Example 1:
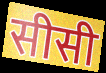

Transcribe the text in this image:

सीसी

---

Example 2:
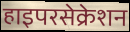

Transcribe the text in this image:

हाइपरसेक्रेशन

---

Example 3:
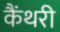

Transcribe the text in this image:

कैंथरी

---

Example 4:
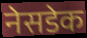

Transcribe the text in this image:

नेसडेक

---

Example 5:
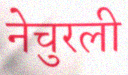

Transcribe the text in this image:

नेचुरली